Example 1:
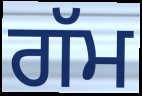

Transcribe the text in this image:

ਗੱਮ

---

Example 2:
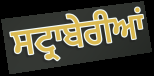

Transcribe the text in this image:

ਸਟ੍ਰਾਬੇਰੀਆਂ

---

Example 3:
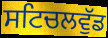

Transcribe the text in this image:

ਸਟਿਚਲਵੁੱਡ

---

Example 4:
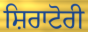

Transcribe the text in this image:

ਸ਼ਿਰਾਟੋਰੀ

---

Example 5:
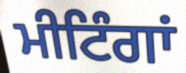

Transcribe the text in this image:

ਮੀਟਿੰਗਾਂ